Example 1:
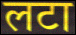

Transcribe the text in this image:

लटा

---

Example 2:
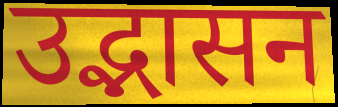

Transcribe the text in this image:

उद्भासन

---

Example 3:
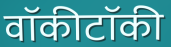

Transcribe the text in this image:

वॉकीटॉकी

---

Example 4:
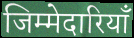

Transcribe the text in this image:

जिम्मेदारियाँ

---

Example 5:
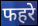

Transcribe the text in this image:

फहरे